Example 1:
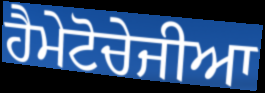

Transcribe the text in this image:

ਹੈਮੇਟੋਚੇਜੀਆ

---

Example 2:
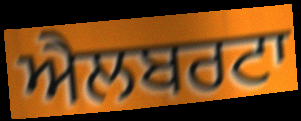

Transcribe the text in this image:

ਐਲਬਰਟਾ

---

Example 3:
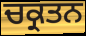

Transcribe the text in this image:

ਚਕ੍ਰਤਨ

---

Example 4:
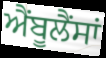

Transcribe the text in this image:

ਐੰਬੂਲੈਂਸਾਂ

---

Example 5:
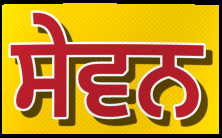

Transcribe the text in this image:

ਸੇਵਨ